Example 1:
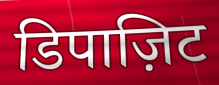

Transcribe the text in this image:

डिपाज़िट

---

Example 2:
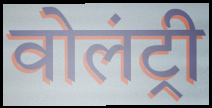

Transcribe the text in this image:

वोलंट्री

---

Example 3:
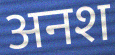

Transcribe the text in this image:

अनश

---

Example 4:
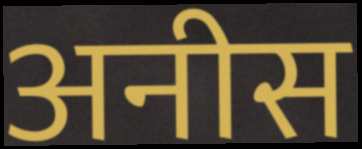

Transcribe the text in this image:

अनीस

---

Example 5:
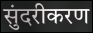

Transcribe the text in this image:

सुंदरीकरण